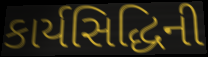
કાર્યસિદ્ધિની